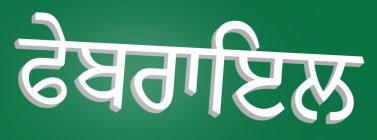
ਫੇਬਰਾਇਲ